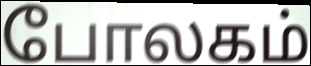
போலகம்